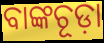
ବାଙ୍କଚୂଡ଼ା